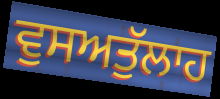
ਵੁਸਅਤੁੱਲਾਹ